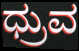
ಧ್ರುವ